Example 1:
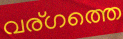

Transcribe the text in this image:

വര്ഗത്തെ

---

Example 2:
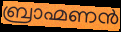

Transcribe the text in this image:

ബ്രാഹ്മണൻ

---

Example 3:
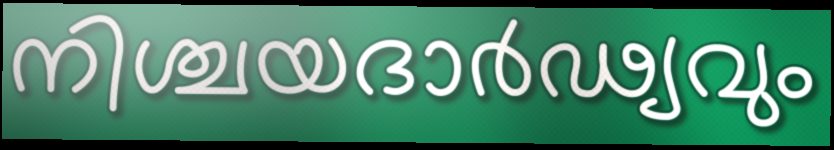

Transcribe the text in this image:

നിശ്ചയദാർഢ്യവും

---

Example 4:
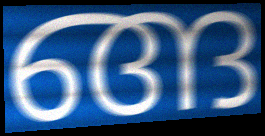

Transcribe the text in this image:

ങ്ങ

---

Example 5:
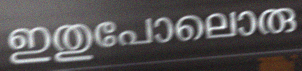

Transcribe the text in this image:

ഇതുപോലൊരു